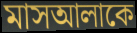
মাসআলাকে